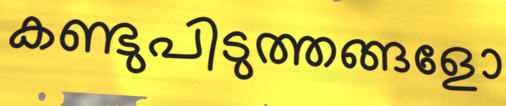
കണ്ടുപിടുത്തങ്ങളോ